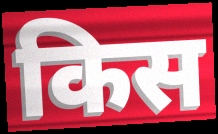
किस